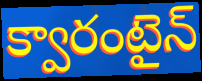
క్వారంటైన్